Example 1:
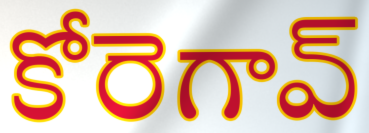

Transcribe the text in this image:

కోరెగావ్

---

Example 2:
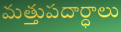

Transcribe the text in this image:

మత్తుపదార్ధాలు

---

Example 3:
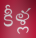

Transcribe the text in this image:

కీళ్ల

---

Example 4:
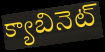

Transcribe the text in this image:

క్యాబినెట్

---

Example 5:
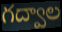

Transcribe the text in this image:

గద్వాల